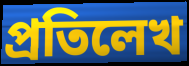
প্রতিলেখ